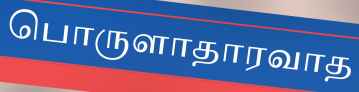
பொருளாதாரவாத